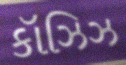
કૉઝિઝ